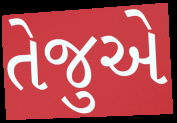
તેજુએ